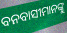
ବନବାସୀମାନଙ୍କୁ